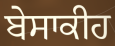
ਬੇਸਾਕੀਹ